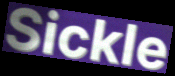
Sickle